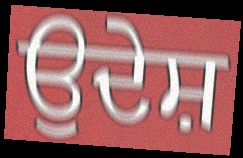
ਉਦੇਸ਼